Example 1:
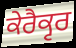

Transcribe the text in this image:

ਕੇਰੈਕ੍ਟਰ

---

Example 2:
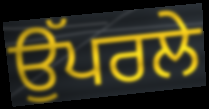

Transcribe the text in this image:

ਉੱਪਰਲੇ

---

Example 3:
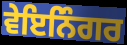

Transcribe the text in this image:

ਵੇਇਨਿੰਗਰ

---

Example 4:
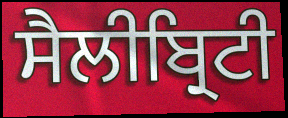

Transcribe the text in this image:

ਸੈਲੀਬ੍ਰਿਟੀ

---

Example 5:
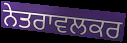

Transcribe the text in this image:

ਨੇਤਰਾਵਲਕਰ